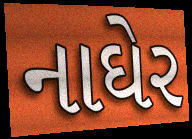
નાઘેર